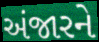
અંજારને